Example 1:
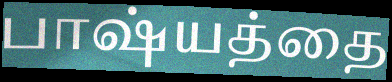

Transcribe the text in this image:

பாஷ்யத்தை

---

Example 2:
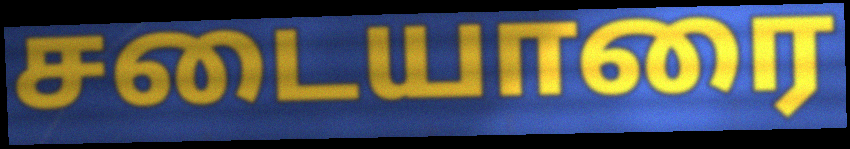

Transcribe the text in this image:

சடையாரை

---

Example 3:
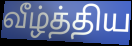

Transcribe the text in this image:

வீழ்த்திய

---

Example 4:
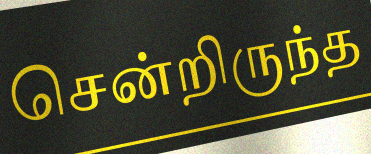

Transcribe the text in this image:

சென்றிருந்த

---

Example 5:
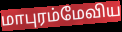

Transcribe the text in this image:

மாபுரம்மேவிய